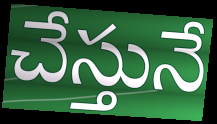
చేస్తునే